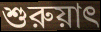
শুরুয়াৎ